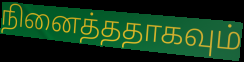
நினைத்ததாகவும்